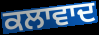
ਕਲਾਵਾਦ